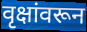
वृक्षांवरून